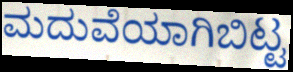
ಮದುವೆಯಾಗಿಬಿಟ್ಟ